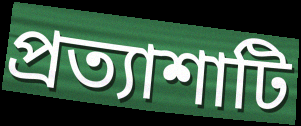
প্রত্যাশাটি